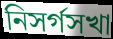
নিসর্গসখা